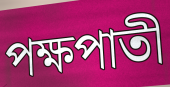
পক্ষপাতী